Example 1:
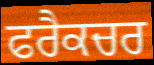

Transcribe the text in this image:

ਫਰੈਕਚਰ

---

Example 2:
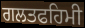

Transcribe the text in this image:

ਗਲਤਫਹਿਮੀ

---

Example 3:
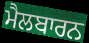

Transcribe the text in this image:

ਮੈਲਬਾਰਨ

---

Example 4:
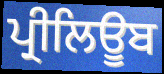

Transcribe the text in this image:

ਪ੍ਰੀਲਿਊਬ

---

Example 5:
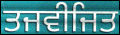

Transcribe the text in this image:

ਤਜਵੀਜਿਤ